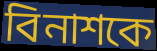
বিনাশকে